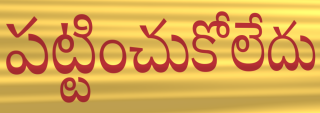
పట్టించుకోలేదు